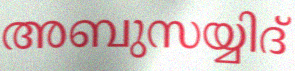
അബുസയ്യിദ്